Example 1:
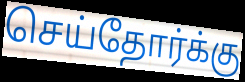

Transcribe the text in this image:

செய்தோர்க்கு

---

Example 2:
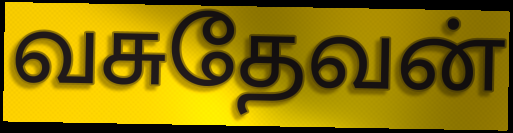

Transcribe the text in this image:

வசுதேவன்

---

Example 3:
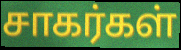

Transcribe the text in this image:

சாகர்கள்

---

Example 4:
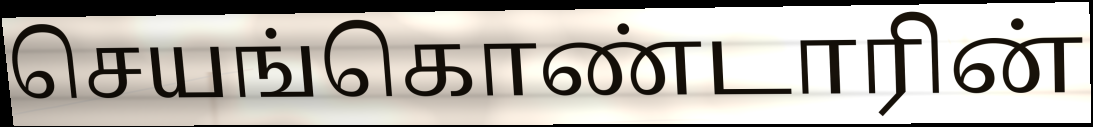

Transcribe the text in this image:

செயங்கொண்டாரின்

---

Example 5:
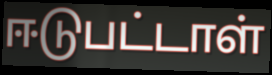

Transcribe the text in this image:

ஈடுபட்டாள்